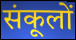
संकूलों